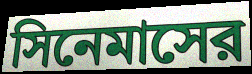
সিনেমাসের